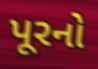
પૂરનો